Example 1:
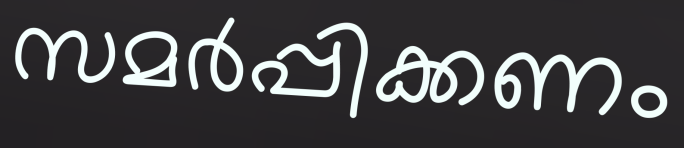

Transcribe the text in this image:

സമർപ്പിക്കണം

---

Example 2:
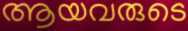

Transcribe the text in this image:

ആയവരുടെ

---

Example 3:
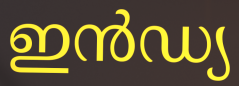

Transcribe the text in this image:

ഇൻഡ്യ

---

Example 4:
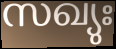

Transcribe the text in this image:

സഖ്യുഃ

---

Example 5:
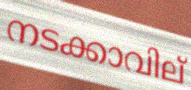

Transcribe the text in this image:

നടക്കാവില്